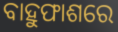
ବାହୁଫାଶରେ